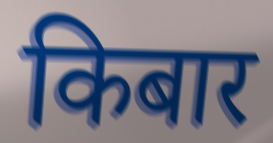
किबार